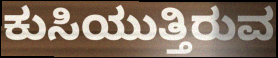
ಕುಸಿಯುತ್ತಿರುವ